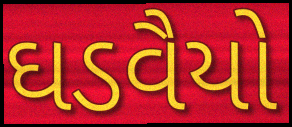
ઘડવૈયો